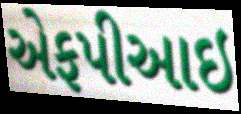
એફપીઆઇ